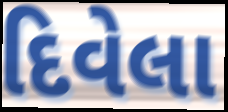
દિવેલા